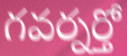
గవర్నర్తో